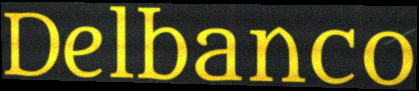
Delbanco